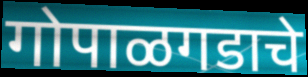
गोपाळगडाचे